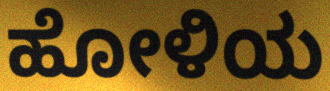
ಹೋಳಿಯ